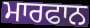
ਮਾਰਫਾਨ